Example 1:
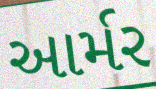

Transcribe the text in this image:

આર્મર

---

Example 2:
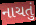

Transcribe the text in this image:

નાચતું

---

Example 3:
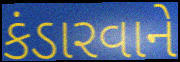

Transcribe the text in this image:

કંડારવાને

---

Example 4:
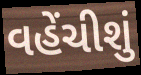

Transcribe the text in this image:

વહેંચીશું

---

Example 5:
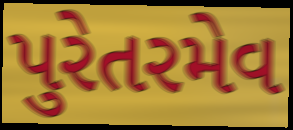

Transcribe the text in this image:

પુરેતરમેવ